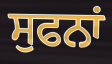
ਸੁਫਨਾਂ